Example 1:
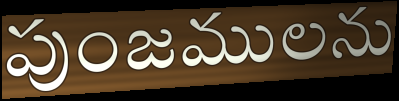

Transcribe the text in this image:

పుంజములను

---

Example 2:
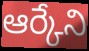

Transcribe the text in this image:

ఆర్కేని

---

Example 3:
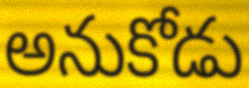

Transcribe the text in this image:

అనుకోడు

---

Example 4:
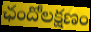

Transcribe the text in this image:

ఛందోలక్షణం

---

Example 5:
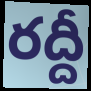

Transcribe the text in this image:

రద్దీ